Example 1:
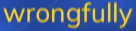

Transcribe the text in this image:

wrongfully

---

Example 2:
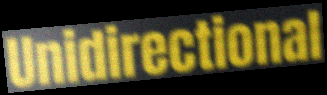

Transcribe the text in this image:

Unidirectional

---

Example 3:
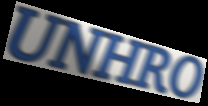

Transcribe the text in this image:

UNHRO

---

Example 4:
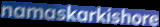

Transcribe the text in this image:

namaskarkishore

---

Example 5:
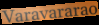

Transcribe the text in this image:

Varavararao